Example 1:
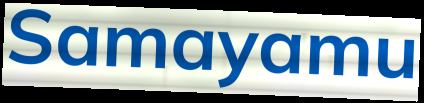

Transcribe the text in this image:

Samayamu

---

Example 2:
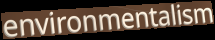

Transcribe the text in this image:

environmentalism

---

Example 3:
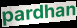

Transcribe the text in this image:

pardhan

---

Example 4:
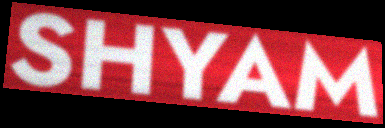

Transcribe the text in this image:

SHYAM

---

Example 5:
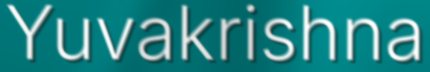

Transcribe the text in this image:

Yuvakrishna